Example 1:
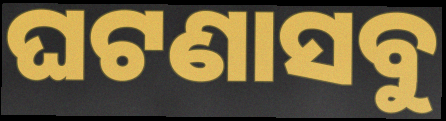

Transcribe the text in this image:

ଘଟଣାସବୁ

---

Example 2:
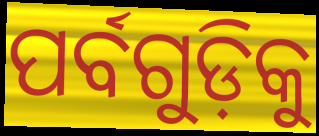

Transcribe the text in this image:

ପର୍ବଗୁଡ଼ିକୁ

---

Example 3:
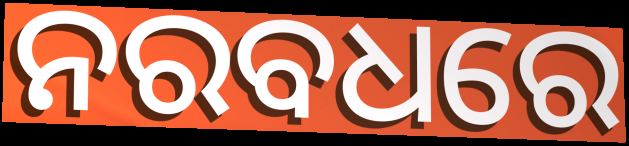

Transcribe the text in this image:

ନରବଧରେ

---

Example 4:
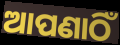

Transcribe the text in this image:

ଆପଣାଠିଁ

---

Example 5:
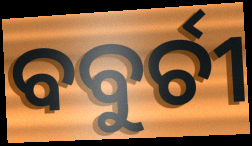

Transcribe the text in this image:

ବବୁର୍ଚୀ